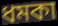
ধমকা